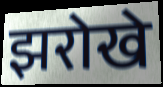
झरोखे